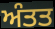
ਅੰਤਤ